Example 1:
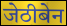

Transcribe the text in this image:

जेठीबेन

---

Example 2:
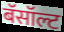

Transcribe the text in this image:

बॅसॉल्ट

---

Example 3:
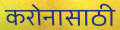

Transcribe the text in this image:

करोनासाठी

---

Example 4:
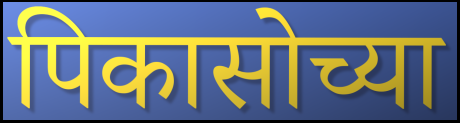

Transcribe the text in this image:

पिकासोच्या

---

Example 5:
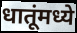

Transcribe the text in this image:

धातूंमध्ये